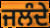
ਜਲੰਦੇ